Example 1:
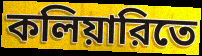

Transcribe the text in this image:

কলিয়ারিতে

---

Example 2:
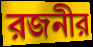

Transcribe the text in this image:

রজনীর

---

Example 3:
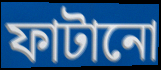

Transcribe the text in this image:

ফাটানো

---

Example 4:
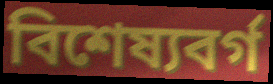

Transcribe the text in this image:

বিশেষ্যবর্গ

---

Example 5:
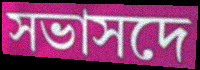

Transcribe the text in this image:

সভাসদে